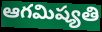
ఆగమిష్యతి